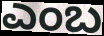
ಎಂಬ